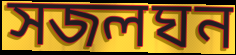
সজলঘন